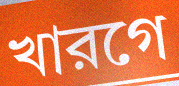
খারগে